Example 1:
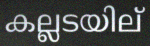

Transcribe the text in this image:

കല്ലടയില്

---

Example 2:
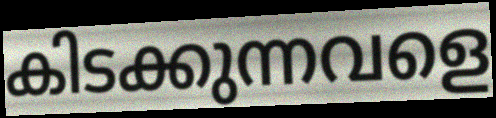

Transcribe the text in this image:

കിടക്കുന്നവളെ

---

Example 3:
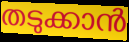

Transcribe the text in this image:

തടുക്കാൻ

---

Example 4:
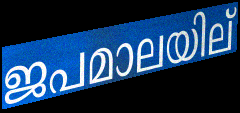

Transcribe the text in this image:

ജപമാലയില്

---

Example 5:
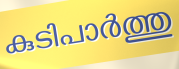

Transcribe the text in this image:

കുടിപാർത്തു